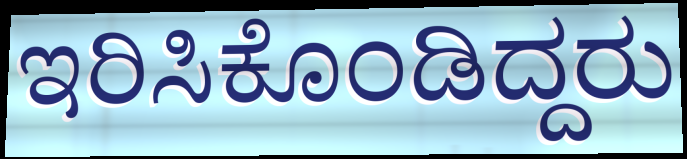
ಇರಿಸಿಕೊಂಡಿದ್ದರು